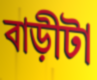
বাড়ীটা